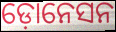
ଡ଼ୋନେସନ